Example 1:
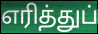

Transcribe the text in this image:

எரித்துப்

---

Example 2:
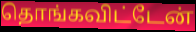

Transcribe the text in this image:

தொங்கவிட்டேன்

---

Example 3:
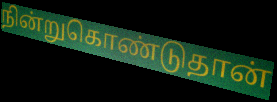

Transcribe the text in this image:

நின்றுகொண்டுதான்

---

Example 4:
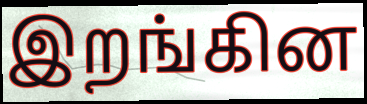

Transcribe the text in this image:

இறங்கின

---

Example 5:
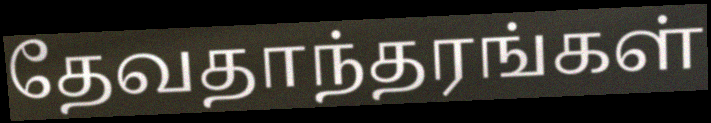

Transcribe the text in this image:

தேவதாந்தரங்கள்